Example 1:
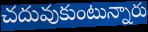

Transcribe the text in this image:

చదువుకుంటున్నారు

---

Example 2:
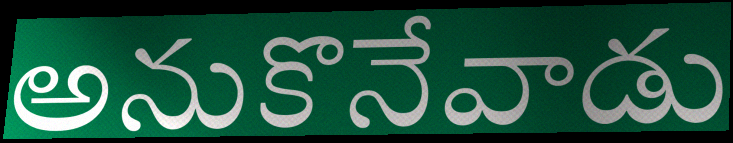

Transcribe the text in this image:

అనుకొనేవాడు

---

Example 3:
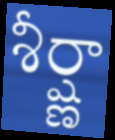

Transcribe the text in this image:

శీర్ష్ణా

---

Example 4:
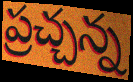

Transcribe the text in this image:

ప్రచ్చన్న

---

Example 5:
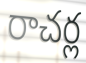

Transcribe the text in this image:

రాచర్ల